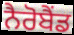
ਨੈਰੋਬੈਂਡ